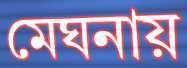
মেঘনায়